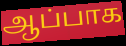
ஆப்பாக